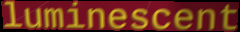
luminescent